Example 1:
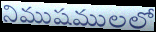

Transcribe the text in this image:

నిముషములలో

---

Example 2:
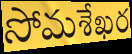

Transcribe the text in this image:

సోమశేఖర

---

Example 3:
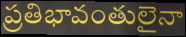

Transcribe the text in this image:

ప్రతిభావంతులైనా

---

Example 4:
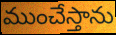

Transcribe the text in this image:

ముంచేస్తాను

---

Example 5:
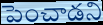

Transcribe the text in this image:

పెంచాడని